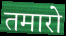
तमारो